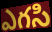
ఎగసి